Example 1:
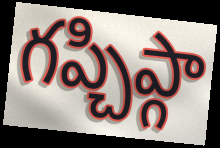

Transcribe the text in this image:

గప్చిప్గా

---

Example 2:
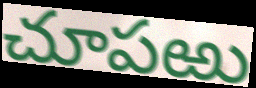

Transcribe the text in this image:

చూపఱు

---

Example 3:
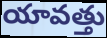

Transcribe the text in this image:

యావత్తు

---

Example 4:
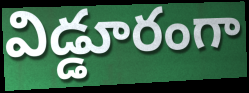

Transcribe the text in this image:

విడ్డూరంగా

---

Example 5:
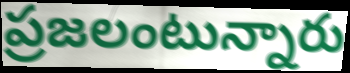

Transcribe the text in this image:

ప్రజలంటున్నారు